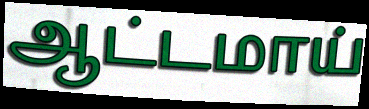
ஆட்டமாய்